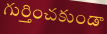
గుర్తించకుండా